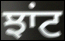
ਝਾਂਟ